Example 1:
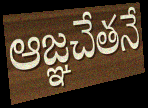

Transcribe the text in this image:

ఆజ్ఞచేతనే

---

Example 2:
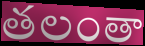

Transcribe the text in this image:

తలంతా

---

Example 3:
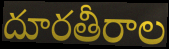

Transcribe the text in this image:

దూరతీరాల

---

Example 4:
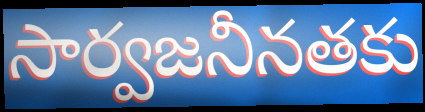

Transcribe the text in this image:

సార్వజనీనతకు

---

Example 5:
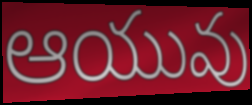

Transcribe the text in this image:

ఆయువు